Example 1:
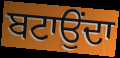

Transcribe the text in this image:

ਬਟਾਉਂਦਾ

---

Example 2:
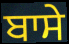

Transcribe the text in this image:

ਬਾਸੇ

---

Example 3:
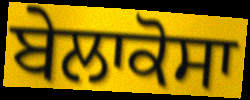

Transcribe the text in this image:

ਬੇਲਾਕੋਸਾ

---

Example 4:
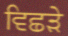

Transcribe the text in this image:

ਵਿਛੜੇ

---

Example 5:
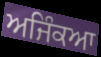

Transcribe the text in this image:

ਅਜਿੰਕਆ